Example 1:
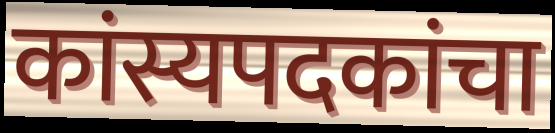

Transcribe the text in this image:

कांस्यपदकांचा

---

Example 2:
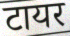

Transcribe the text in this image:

टायर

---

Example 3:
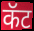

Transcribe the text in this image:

कॅट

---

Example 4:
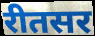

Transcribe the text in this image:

रीतसर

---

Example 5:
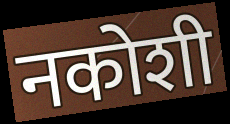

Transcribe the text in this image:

नकोशी